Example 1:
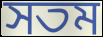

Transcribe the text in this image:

সতম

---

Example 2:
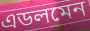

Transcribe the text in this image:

এডলমেন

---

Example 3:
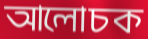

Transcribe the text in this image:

আলোচক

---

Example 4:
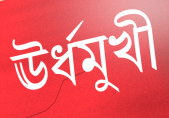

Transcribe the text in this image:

ঊৰ্ধমুখী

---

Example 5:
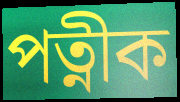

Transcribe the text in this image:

পত্নীক